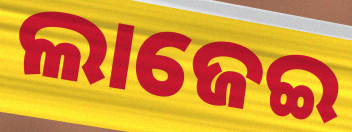
ଲାଜେଇ